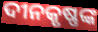
ଦୀନକୃଷ୍ଣଙ୍କ